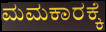
ಮಮಕಾರಕ್ಕೆ